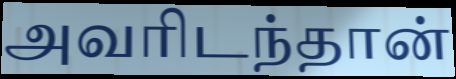
அவரிடந்தான்